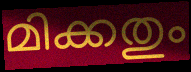
മിക്കതും